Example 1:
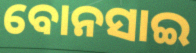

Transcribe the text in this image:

ବୋନସାଇ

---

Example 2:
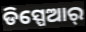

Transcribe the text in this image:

ଡିସ୍ପେଆର୍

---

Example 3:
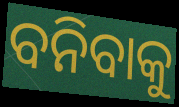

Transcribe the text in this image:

ବନିବାକୁ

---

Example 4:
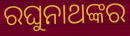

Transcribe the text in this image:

ରଘୁନାଥଙ୍କର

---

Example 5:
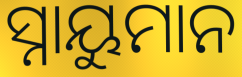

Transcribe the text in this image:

ସ୍ନାୟୁମାନ